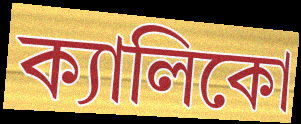
ক্যালিকো